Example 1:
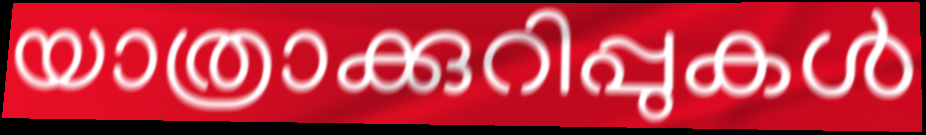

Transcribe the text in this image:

യാത്രാക്കുറിപ്പുകൾ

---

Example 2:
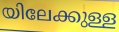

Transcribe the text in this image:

യിലേക്കുള്ള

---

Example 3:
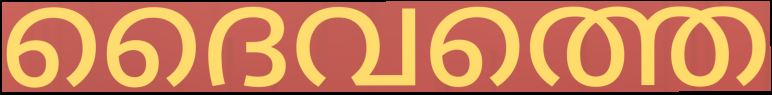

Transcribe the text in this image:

ദൈവത്തെ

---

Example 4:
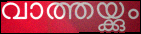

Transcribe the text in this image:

വാത്തയ്ക്കും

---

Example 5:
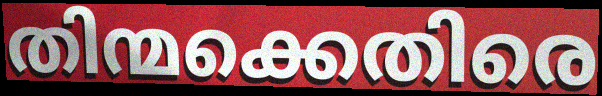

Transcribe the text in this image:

തിന്മക്കെതിരെ